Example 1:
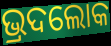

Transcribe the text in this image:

ଭ୍ରଦଲୋକ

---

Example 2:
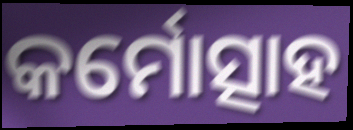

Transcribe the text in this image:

କର୍ମୋତ୍ସାହ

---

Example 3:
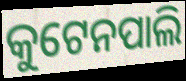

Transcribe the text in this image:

କୁଟେନପାଲି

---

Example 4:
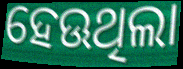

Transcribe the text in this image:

ହେଊଥିଲା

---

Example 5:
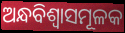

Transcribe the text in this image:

ଅନ୍ଧବିଶ୍ୱାସମୂଳକ